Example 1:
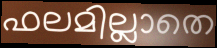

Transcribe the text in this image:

ഫലമില്ലാതെ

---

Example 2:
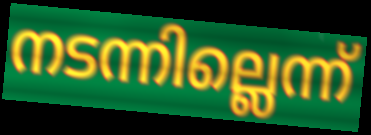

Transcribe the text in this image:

നടന്നില്ലെന്ന്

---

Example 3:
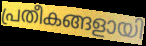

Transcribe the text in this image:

പ്രതീകങ്ങളായി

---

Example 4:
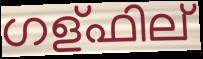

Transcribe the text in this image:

ഗള്ഫില്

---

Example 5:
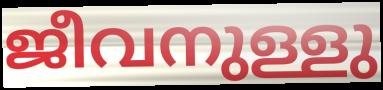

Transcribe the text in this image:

ജീവനുള്ളു